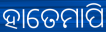
ହାତେମାପି